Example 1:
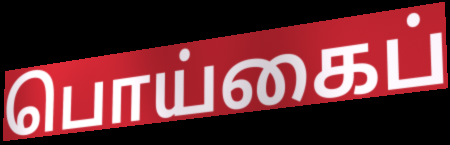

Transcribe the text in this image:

பொய்கைப்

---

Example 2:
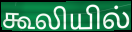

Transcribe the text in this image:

கூலியில்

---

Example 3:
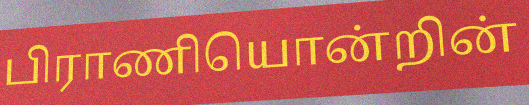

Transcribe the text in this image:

பிராணியொன்றின்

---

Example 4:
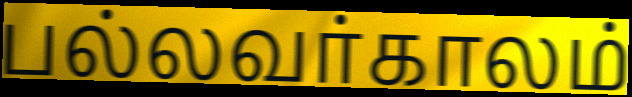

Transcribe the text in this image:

பல்லவர்காலம்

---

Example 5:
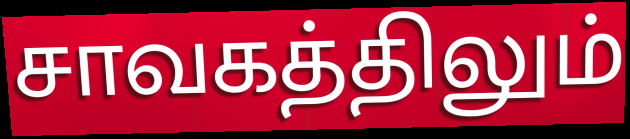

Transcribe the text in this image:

சாவகத்திலும்